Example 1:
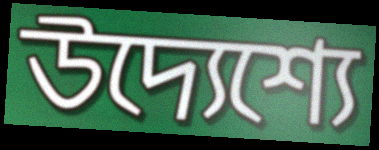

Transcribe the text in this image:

উদ্যেশ্যে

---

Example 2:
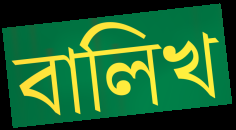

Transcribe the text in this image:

বালিখ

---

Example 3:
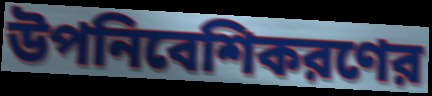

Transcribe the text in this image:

উপনিবেশিকরণের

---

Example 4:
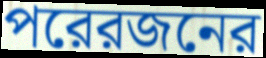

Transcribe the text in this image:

পরেরজনের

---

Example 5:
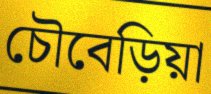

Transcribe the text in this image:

চৌবেড়িয়া